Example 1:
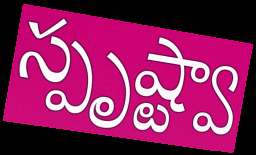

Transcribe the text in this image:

స్పృష్ట్వా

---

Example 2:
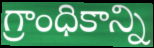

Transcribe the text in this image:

గ్రాంధికాన్ని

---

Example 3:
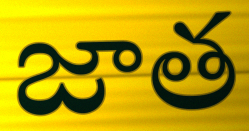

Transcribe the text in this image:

జాత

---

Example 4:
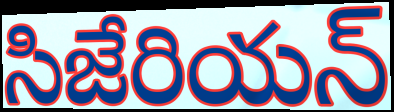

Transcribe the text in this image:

సిజేరియన్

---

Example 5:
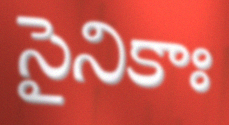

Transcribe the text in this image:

సైనికాః